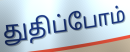
துதிப்போம்